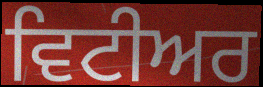
ਵਿਟੀਅਰ